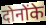
दोनोंके